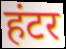
हंटर